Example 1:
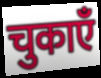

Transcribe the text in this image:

चुकाएँ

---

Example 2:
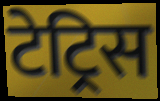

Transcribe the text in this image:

टेट्रिस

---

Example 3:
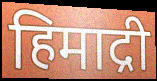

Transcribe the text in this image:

हिमाद्री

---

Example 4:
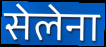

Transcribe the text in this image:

सेलेना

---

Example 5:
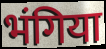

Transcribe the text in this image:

भंगिया